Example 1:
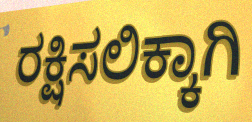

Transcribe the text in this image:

ರಕ್ಷಿಸಲಿಕ್ಕಾಗಿ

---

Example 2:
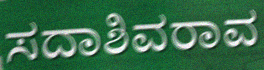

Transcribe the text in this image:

ಸದಾಶಿವರಾವ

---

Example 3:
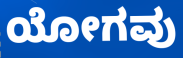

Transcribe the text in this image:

ಯೋಗವು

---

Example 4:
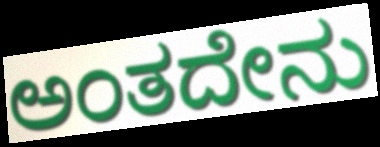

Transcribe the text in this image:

ಅಂತದೇನು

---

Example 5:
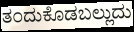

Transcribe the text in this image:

ತಂದುಕೊಡಬಲ್ಲುದು